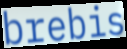
brebis